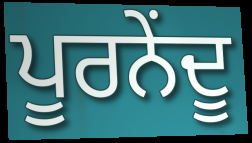
ਪੂਰਨੇਂਦੂ